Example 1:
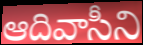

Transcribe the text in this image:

ఆదివాసీని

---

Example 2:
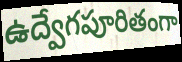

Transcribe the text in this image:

ఉద్వేగపూరితంగా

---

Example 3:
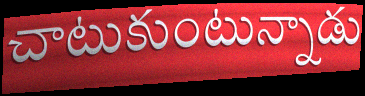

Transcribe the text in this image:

చాటుకుంటున్నాడు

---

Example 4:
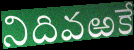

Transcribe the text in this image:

నిదివఱకే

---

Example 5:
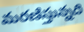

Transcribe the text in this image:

మరణిస్తున్నది